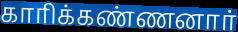
காரிக்கண்ணனார்